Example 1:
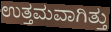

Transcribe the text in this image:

ಉತ್ತಮವಾಗಿತ್ತು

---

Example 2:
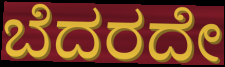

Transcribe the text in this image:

ಬೆದರದೇ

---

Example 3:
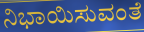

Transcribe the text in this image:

ನಿಭಾಯಿಸುವಂತೆ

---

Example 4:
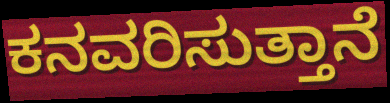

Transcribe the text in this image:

ಕನವರಿಸುತ್ತಾನೆ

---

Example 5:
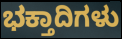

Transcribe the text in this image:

ಭಕ್ತಾದಿಗಳು